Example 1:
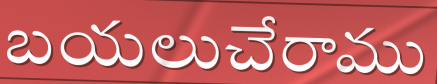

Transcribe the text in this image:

బయలుచేరాము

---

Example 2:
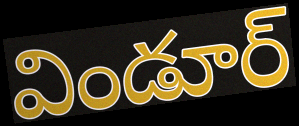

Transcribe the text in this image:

విండూర్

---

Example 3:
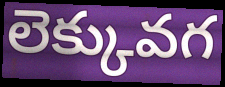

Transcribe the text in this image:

లెక్కువగ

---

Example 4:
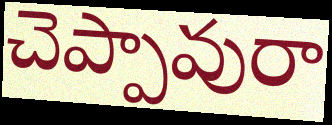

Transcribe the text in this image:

చెప్పావురా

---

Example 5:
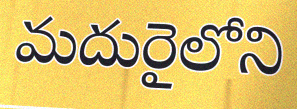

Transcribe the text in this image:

మదురైలోని